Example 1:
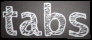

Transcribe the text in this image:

tabs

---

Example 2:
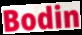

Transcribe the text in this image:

Bodin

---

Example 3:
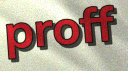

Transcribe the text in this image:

proff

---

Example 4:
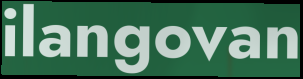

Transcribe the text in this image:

ilangovan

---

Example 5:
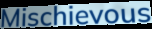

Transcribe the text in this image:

Mischievous